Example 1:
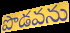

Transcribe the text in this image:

పొడవను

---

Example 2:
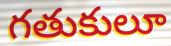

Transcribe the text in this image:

గతుకులూ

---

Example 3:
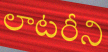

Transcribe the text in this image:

లాటరీని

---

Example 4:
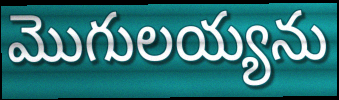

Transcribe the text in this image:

మొగులయ్యను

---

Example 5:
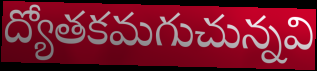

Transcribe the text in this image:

ద్యోతకమగుచున్నవి